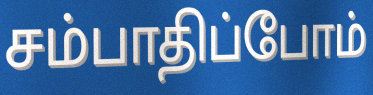
சம்பாதிப்போம்